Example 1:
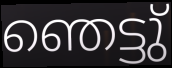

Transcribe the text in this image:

ഞെട്ടു്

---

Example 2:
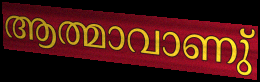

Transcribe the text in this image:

ആത്മാവാണു്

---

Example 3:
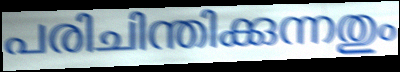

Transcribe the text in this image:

പരിചിന്തിക്കുന്നതും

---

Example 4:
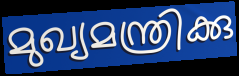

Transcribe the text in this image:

മുഖ്യമന്ത്രിക്കു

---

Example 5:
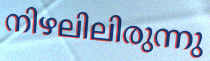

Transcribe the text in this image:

നിഴലിലിരുന്നു